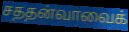
சததன்வாவைக்